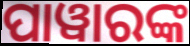
ପାୱାରଙ୍କ